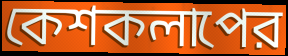
কেশকলাপের